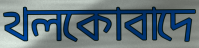
থলকোবাদে